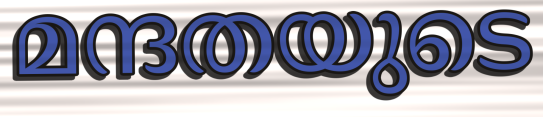
മന്ദതയുടെ